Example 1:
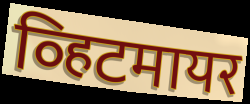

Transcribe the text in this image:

व्हिटमायर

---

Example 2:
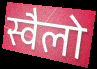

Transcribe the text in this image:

स्वैलो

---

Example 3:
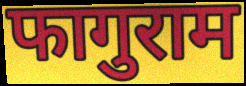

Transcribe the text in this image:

फागुराम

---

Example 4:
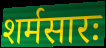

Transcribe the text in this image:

शर्मसारः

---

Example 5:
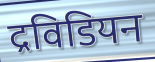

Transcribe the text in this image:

द्रविडियन